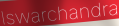
Iswarchandra